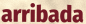
arribada